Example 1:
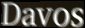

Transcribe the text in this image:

Davos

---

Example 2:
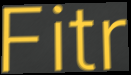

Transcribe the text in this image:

Fitr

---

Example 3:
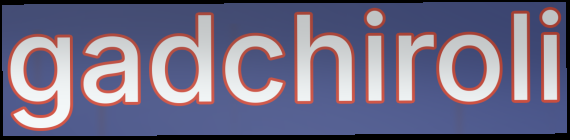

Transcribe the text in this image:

gadchiroli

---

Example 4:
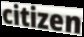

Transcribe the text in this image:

citizen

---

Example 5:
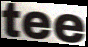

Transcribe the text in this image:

tee